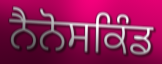
ਨੈਨੋਸਕਿੰਡ